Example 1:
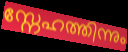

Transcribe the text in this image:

സ്നേഹത്തിന്നും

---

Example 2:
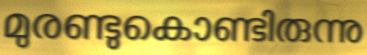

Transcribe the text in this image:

മുരണ്ടുകൊണ്ടിരുന്നു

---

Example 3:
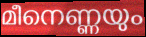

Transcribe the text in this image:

മീനെണ്ണയും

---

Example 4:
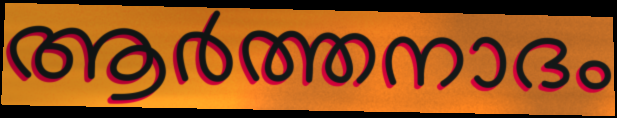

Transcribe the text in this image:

ആർത്തനാദം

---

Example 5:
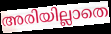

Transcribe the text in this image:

അരിയില്ലാതെ